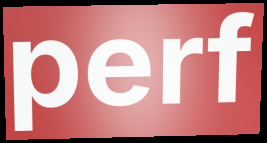
perf